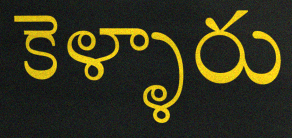
కెళ్ళారు